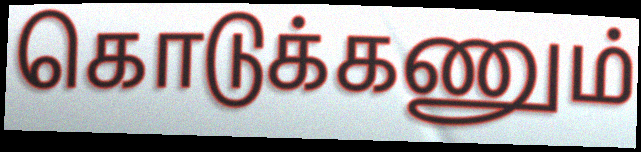
கொடுக்கணும்